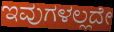
ಇವುಗಳಲ್ಲದೇ